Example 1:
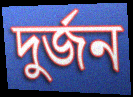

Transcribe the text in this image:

দুর্জন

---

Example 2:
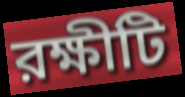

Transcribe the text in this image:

রক্ষীটি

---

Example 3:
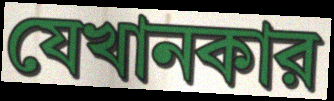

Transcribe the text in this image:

যেখানকার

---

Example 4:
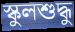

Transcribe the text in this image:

স্কুলশুদ্ধু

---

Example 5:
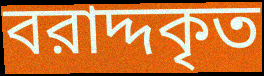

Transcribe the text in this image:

বরাদ্দকৃত